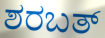
ಶರಬತ್